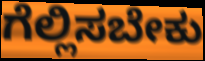
ಗೆಲ್ಲಿಸಬೇಕು